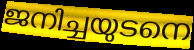
ജനിച്ചയുടനെ